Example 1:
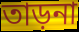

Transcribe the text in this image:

তাড়না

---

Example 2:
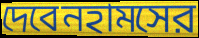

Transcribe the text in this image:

দেবেনহামসের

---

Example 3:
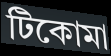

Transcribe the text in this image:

টিকোমা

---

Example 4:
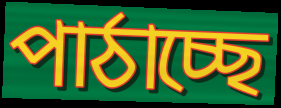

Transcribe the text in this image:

পাঠাচ্ছে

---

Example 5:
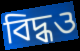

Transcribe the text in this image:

বিদ্ধও